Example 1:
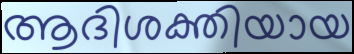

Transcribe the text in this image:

ആദിശക്തിയായ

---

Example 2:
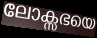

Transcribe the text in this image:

ലോക്സഭയെ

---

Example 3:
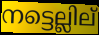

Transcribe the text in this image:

നട്ടെല്ലില്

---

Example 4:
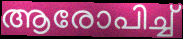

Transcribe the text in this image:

ആരോപിച്ച്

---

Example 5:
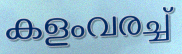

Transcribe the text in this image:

കളംവരച്ച്